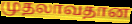
முதலாவதான